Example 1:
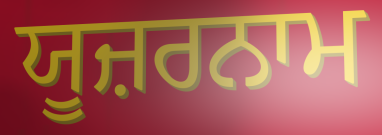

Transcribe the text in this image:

ਯੂਜ਼ਰਨਾਮ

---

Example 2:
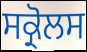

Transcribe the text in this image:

ਸਕ੍ਰੋਲਸ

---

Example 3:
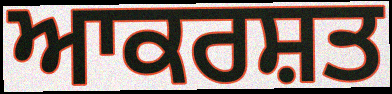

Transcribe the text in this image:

ਆਕਰਸ਼ਤ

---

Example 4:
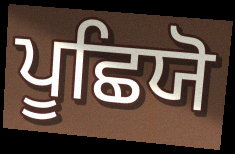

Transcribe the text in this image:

ਪੂਛਿਯੋ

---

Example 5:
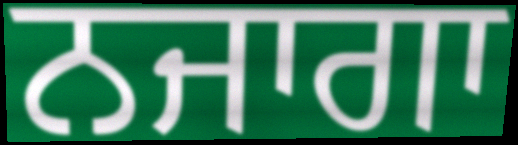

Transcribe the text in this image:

ਨਜਾਗਾ